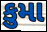
કુમા